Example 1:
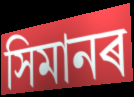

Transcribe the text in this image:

সিমানৰ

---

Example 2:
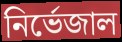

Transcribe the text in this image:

নিৰ্ভেজাল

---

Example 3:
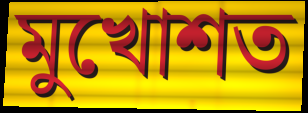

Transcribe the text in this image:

মুখোশত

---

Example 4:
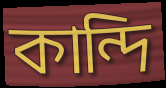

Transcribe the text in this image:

কান্দি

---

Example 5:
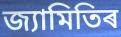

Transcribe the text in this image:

জ্যামিতিৰ